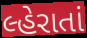
લ્હેરાતાં